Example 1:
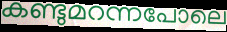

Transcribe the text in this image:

കണ്ടുമറന്നപോലെ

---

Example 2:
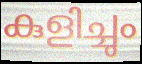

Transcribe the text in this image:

കുളിച്ചും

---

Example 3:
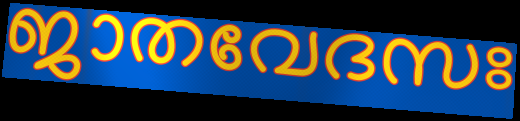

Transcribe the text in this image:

ജാതവേദസഃ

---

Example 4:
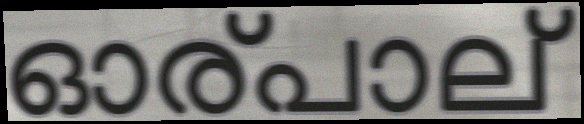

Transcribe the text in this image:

ഓര്പാല്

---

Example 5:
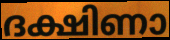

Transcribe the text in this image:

ദക്ഷിണാ